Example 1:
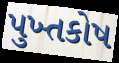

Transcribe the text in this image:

પુખ્તકોષ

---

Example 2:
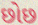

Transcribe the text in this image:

છોછ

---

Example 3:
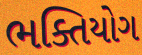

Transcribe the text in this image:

ભક્તિયોગ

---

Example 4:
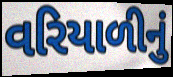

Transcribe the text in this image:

વરિયાળીનું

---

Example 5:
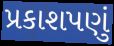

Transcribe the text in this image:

પ્રકાશપણું